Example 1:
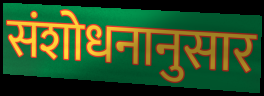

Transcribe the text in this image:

संशोधनानुसार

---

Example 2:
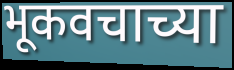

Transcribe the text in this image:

भूकवचाच्या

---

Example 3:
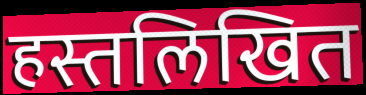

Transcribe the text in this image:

हस्तलिखित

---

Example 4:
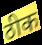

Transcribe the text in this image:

ठीक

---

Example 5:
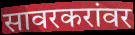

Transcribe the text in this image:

सावरकरांवर